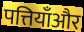
पत्तियाँऔर